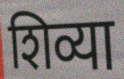
शिव्या